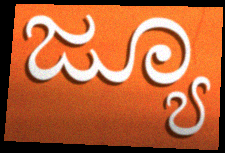
ಜ್ಯೂ